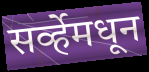
सर्व्हेमधून